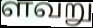
ளவறு